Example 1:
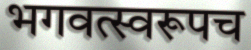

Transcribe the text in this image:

भगवत्स्वरूपच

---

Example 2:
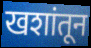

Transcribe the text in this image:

खशांतून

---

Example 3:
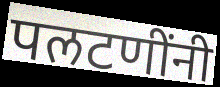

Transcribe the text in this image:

पलटणींनी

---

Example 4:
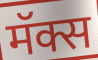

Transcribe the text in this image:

मॅक्स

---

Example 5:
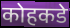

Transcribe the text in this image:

कोहकडे